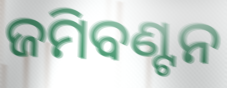
ଜମିବଣ୍ଟନ